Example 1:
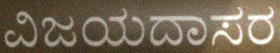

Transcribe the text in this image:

ವಿಜಯದಾಸರ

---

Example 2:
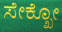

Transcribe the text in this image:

ಸೇಕ್ಖೋ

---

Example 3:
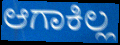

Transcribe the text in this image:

ಆಗಾಕಿಲ್ಲ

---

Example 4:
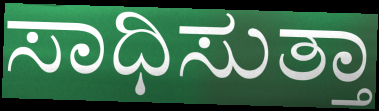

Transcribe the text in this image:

ಸಾಧಿಸುತ್ತಾ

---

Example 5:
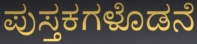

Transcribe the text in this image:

ಪುಸ್ತಕಗಳೊಡನೆ